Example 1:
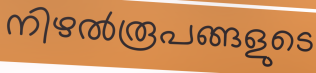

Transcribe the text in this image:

നിഴൽരൂപങ്ങളുടെ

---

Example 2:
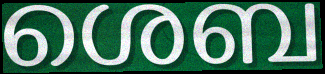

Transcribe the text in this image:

ശെബ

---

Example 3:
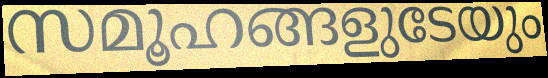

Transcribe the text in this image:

സമൂഹങ്ങളുടേയും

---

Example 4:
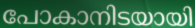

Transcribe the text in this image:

പോകാനിടയായി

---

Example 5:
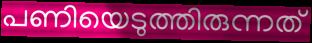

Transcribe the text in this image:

പണിയെടുത്തിരുന്നത്